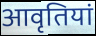
आवृतियां